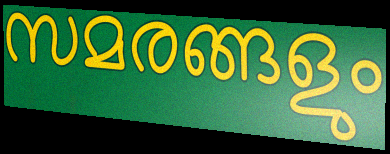
സമരങ്ങളും